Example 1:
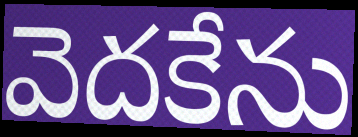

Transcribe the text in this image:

వెదకేను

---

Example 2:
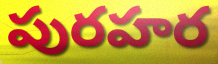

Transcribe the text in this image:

పురహర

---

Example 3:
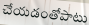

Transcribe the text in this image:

చేయడంతోపాటు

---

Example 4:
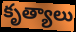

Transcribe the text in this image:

కృత్యాలు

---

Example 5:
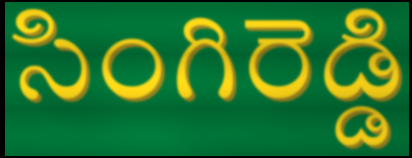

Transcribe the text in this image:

సింగిరెడ్డి